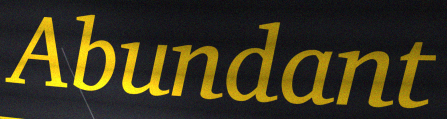
Abundant